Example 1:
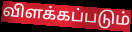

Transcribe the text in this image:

விளக்கப்படும்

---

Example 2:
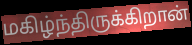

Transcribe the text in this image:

மகிழ்ந்திருக்கிறான்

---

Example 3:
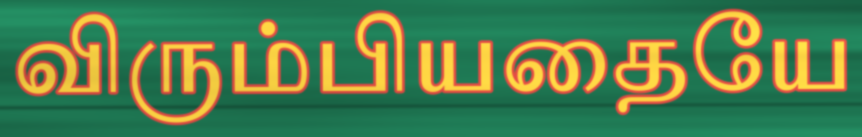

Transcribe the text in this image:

விரும்பியதையே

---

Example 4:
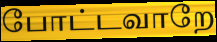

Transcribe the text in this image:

போட்டவாறே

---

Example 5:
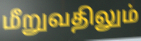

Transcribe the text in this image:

மீறுவதிலும்